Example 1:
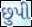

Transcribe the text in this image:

છુપી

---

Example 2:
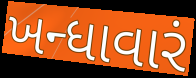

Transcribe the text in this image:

ખન્ધાવારં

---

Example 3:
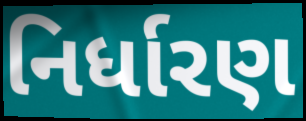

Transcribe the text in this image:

નિર્ધારણ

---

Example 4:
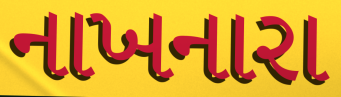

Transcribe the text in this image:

નાખનારા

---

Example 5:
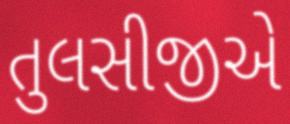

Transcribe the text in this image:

તુલસીજીએ